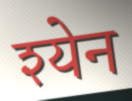
श्येन